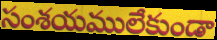
సంశయములేకుండా